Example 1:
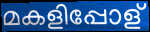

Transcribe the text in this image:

മകളിപ്പോള്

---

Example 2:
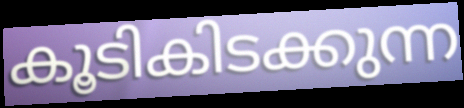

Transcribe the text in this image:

കൂടികിടക്കുന്ന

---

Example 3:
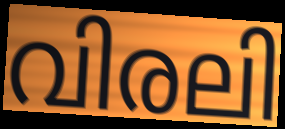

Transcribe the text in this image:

വിരലി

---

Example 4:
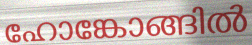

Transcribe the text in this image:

ഹോങ്കോങ്ങിൽ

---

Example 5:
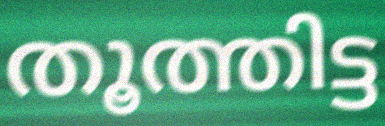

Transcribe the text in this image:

തൂത്തിട്ട